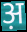
अ़